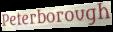
Peterborough